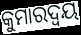
କୁମାରଦ୍ଵୟ